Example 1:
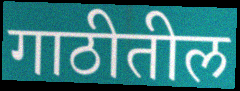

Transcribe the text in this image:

गाठीतील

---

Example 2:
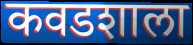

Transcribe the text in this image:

कवडशाला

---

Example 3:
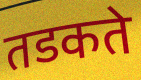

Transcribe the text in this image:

तडकते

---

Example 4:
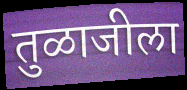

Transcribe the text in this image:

तुळाजीला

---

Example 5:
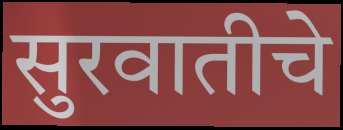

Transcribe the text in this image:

सुरवातीचे